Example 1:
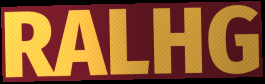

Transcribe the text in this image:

RALHG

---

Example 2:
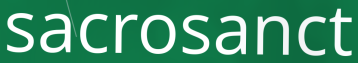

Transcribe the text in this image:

sacrosanct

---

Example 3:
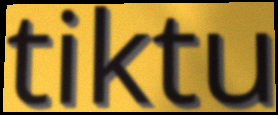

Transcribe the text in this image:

tiktu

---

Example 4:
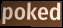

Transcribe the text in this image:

poked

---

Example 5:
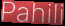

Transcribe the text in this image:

Pahili